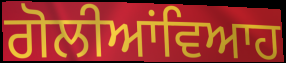
ਗੋਲੀਆਂਵਿਆਹ